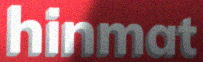
hinmat